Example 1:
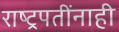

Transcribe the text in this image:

राष्ट्रपतींनाही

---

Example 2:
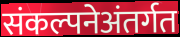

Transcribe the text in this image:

संकल्पनेअंतर्गत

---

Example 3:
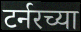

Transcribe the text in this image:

टर्नरच्या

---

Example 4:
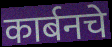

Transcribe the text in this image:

कार्बनचे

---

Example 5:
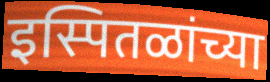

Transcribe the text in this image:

इस्पितळांच्या